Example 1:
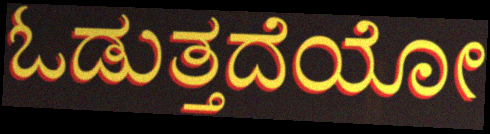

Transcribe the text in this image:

ಓಡುತ್ತದೆಯೋ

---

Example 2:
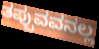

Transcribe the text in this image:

ತಪ್ಪುವವನಲ್ಲ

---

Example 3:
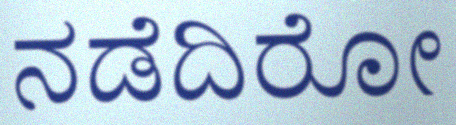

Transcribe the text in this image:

ನಡೆದಿರೋ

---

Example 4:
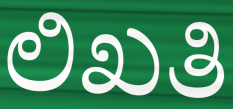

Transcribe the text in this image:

ಲಿಖತಿ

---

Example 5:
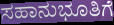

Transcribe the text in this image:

ಸಹಾನುಭೂತಿಗೆ